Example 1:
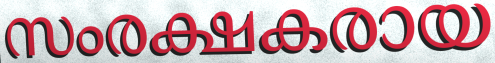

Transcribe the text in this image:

സംരക്ഷകരായ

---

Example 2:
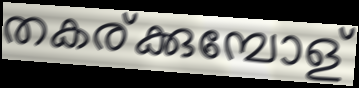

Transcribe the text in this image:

തകര്ക്കുമ്പോള്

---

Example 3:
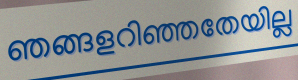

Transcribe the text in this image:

ഞങ്ങളറിഞ്ഞതേയില്ല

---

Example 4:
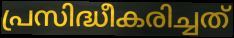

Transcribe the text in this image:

പ്രസിദ്ധീകരിച്ചത്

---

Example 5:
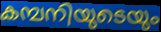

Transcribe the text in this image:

കമ്പനിയുടെയും